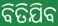
ବିତିଯିବ